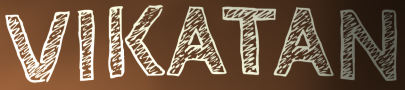
VIKATAN